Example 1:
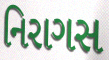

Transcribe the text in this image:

નિરાગસ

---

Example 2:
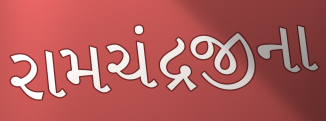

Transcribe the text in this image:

રામચંદ્રજીના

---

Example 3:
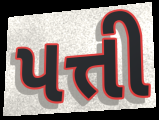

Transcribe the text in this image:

પત્તી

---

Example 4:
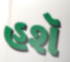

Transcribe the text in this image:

હશૅ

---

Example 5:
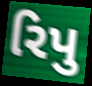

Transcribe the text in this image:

રિપુ